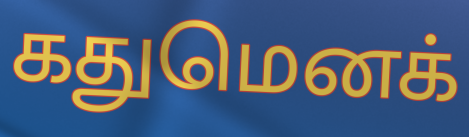
கதுமெனக்